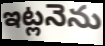
ఇట్లనెను